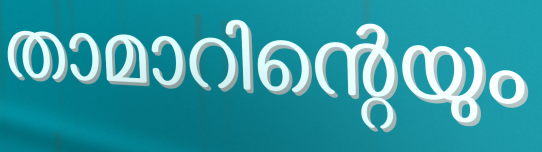
താമാറിന്റെയും